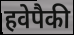
हवेपैकी